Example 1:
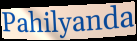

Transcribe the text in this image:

Pahilyanda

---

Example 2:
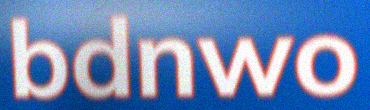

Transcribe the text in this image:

bdnwo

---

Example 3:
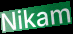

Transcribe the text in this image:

Nikam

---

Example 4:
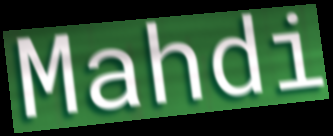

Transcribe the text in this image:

Mahdi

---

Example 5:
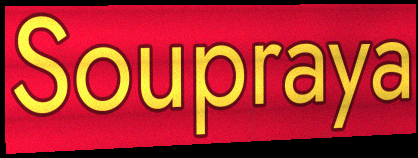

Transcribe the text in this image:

Soupraya